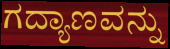
ಗದ್ಯಾಣವನ್ನು